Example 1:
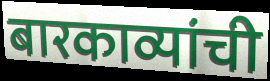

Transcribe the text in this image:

बारकाव्यांची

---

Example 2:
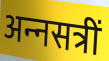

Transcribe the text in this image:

अन्नसत्रीं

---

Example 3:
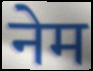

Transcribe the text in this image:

नेम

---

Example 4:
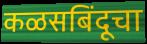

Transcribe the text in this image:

कळसबिंदूचा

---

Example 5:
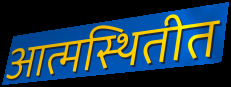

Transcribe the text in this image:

आत्मस्थितीत